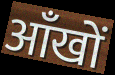
आँखों